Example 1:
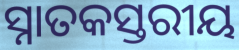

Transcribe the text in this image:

ସ୍ନାତକସ୍ତରୀୟ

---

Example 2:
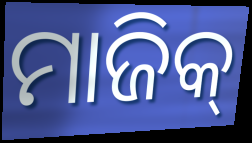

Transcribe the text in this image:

ମାଜିକ୍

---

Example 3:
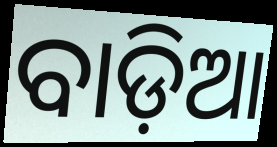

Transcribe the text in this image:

ବାଡ଼ିଆ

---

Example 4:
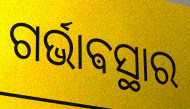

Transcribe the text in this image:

ଗର୍ଭାଵସ୍ଥାର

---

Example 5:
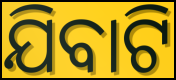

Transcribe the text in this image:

ଯିବାଟି